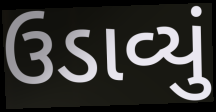
ઉડાવ્યું